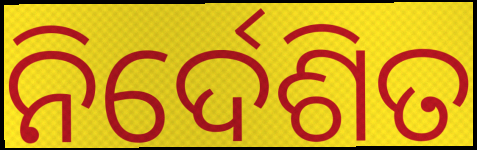
ନିର୍ଦେଶିତ